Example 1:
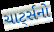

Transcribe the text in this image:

ચાર્ટ્સનો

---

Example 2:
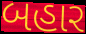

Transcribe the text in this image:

બહાર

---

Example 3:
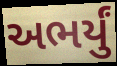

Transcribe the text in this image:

અભર્યું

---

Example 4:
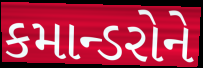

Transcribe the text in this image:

કમાન્ડરોને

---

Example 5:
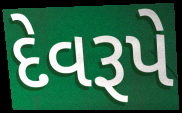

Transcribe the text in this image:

દેવરૂપે